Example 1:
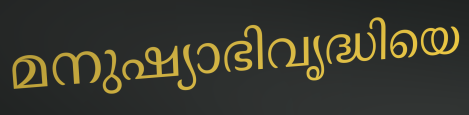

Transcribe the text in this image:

മനുഷ്യാഭിവൃദ്ധിയെ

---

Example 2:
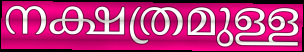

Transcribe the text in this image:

നക്ഷത്രമുള്ള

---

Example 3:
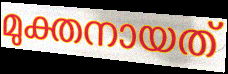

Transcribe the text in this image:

മുക്തനായത്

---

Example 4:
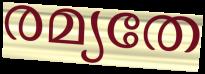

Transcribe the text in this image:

രമ്യതേ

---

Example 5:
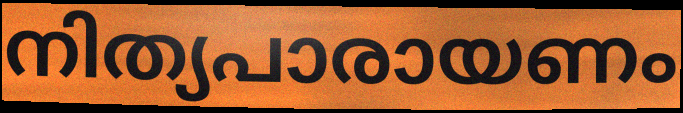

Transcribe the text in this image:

നിത്യപാരായണം